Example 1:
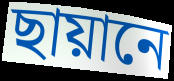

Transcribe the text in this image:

ছায়ানে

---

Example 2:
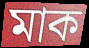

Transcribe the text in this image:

মাক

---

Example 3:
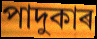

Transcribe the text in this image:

পাদুকাৰ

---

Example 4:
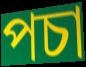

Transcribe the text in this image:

পচা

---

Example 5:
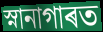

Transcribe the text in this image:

স্নানাগাৰত